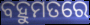
ବହୁମତରେ